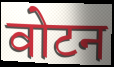
वोटन